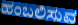
ಹಂಬಲಿಸುವ